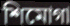
শিমোগা